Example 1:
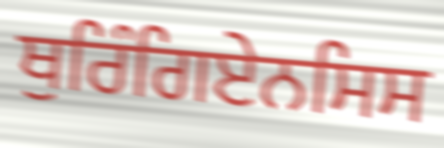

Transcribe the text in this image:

ਥੁਰਿੰਗਿਏਨਸਿਸ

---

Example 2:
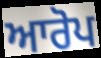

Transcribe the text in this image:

ਆਰੋਪ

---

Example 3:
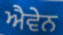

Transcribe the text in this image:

ਐਵੇਨ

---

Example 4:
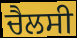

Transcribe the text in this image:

ਚੈਲਸੀ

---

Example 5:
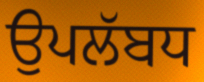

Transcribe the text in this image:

ਉਪਲੱਬਧ